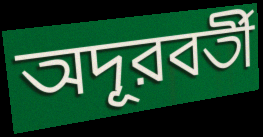
অদূরবর্তী